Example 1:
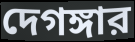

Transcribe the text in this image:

দেগঙ্গার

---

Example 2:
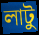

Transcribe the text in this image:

লাটু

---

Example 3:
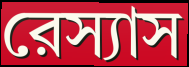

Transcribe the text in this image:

রেস্যাস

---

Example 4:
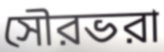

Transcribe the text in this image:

সৌরভরা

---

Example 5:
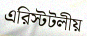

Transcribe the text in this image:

এরিস্টটলীয়